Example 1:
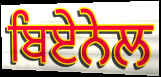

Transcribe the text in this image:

ਬਿਏਨੇਲ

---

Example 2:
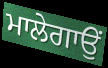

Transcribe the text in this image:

ਮਾਲੇਗਾਉਂ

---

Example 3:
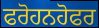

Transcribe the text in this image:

ਫਰੋਹਨਹੋਫਰ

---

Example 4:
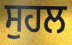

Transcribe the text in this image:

ਸੁਹਲ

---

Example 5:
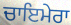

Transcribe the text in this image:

ਚਾਇਮੇਰਾ